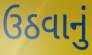
ઉઠવાનું